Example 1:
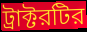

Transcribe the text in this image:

ট্রাক্টরটির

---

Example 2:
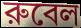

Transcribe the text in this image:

রুবেল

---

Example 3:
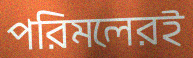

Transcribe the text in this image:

পরিমলেরই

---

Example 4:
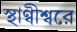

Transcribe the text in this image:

স্থাণ্বীশ্বরে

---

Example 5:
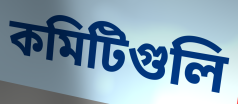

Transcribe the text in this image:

কমিটিগুলি